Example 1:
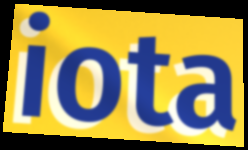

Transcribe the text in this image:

iota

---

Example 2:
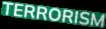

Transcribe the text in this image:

TERRORISM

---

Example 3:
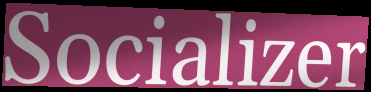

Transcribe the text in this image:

Socializer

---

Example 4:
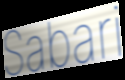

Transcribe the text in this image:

Sabari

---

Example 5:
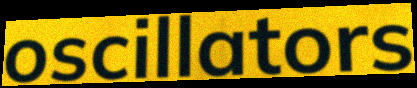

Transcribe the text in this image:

oscillators